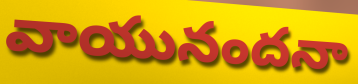
వాయునందనా